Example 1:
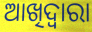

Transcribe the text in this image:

ଆଖିଦ୍ୱାରା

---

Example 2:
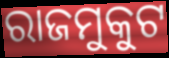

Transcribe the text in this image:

ରାଜମୁକୁଟ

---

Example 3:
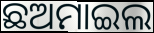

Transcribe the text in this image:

ଛଅମାଇଲ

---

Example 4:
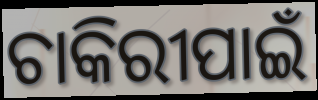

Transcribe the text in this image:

ଚାକିରୀପାଇଁ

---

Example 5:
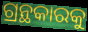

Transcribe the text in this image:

ଗ୍ରନ୍ଥକାରକୁ